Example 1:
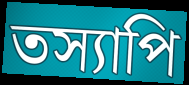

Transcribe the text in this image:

তস্যাপি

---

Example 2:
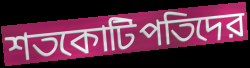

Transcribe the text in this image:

শতকোটিপতিদের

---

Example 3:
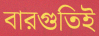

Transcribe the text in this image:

বারগুতিই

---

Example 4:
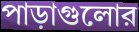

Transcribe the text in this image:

পাড়াগুলোর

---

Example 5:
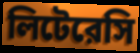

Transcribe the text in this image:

লিটেরেসি